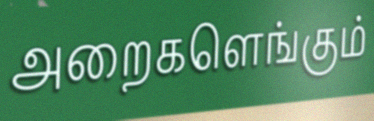
அறைகளெங்கும்